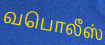
வபொலீஸ்